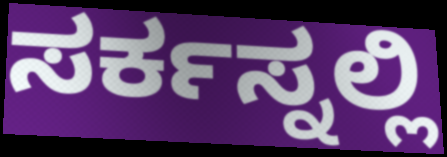
ಸರ್ಕಸ್ನಲ್ಲಿ